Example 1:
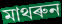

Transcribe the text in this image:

মাথৰুন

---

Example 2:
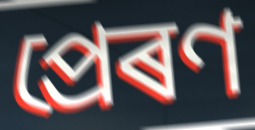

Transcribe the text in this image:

প্ৰেৰণ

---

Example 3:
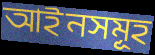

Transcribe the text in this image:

আইনসমূহ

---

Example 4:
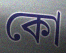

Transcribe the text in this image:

কো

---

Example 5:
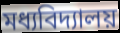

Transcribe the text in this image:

মধ্যবিদ্যালয়